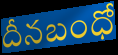
దీనబంధో